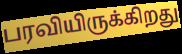
பரவியிருக்கிறது